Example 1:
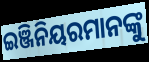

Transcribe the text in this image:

ଇଞ୍ଜିନିୟରମାନଙ୍କୁ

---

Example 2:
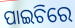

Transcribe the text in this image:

ପାଇଚିରେ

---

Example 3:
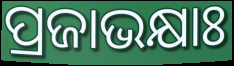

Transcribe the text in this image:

ପ୍ରଜାଭକ୍ଷାଃ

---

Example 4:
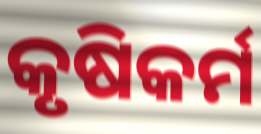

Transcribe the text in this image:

କୃଷିକର୍ମ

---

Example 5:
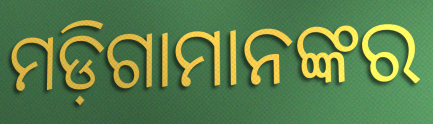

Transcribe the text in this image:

ମଡ଼ିଗାମାନଙ୍କର